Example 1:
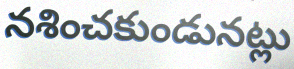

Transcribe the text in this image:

నశించకుండునట్లు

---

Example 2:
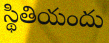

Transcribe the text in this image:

స్థితియందు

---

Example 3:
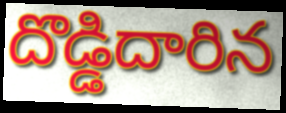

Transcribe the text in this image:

దొడ్డిదారిన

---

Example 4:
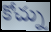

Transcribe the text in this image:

కోచ్ను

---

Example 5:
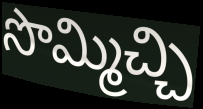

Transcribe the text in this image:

సొమ్మిచ్చి